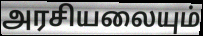
அரசியலையும்